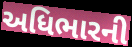
અધિભારની